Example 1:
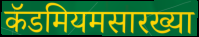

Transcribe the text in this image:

कॅडमियमसारख्या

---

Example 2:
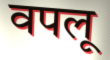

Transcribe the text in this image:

वपलू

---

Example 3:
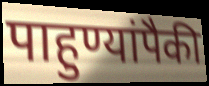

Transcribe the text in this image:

पाहुण्यांपैकी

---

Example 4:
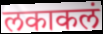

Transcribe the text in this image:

लकाकलं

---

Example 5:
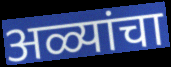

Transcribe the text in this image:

अळ्यांचा